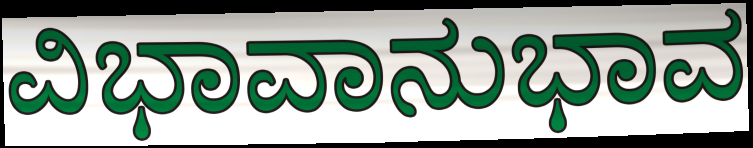
ವಿಭಾವಾನುಭಾವ